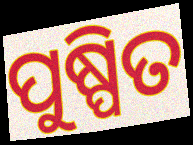
ପୁଷ୍ପିତ